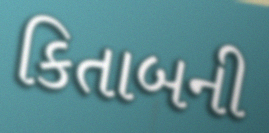
કિતાબની